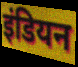
इंडियन